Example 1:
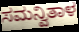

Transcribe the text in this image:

ಸಮನ್ವಿತಾಳ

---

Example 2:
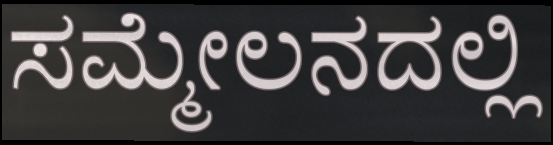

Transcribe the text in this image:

ಸಮ್ಮೇಲನದಲ್ಲಿ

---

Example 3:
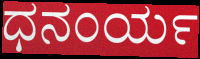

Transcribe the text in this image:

ಧನಂರ್ಯ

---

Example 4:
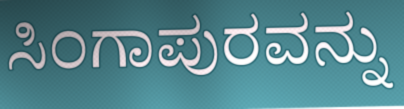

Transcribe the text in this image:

ಸಿಂಗಾಪುರವನ್ನು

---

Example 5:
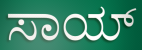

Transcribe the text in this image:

ಸಾಯ್